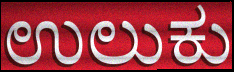
ಉಲುಕು